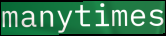
manytimes